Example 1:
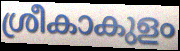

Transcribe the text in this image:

ശ്രീകാകുളം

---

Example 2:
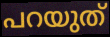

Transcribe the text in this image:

പറയുത്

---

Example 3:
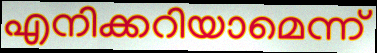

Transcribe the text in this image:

എനിക്കറിയാമെന്ന്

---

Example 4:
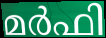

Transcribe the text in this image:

മർഫി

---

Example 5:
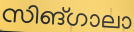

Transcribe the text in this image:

സിങ്ഗാലാ